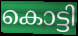
കൊട്ടി